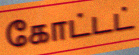
கோட்டட்